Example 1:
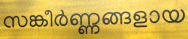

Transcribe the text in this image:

സങ്കീർണ്ണങ്ങളായ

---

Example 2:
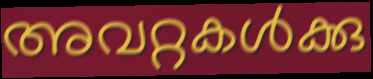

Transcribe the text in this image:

അവറ്റകൾക്കു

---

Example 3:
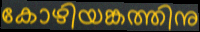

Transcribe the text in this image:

കോഴിയങ്കത്തിനു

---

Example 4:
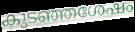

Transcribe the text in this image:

കുടഞ്ഞശേഷം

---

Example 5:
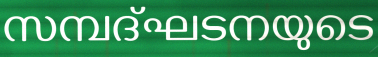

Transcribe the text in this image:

സമ്പദ്ഘടനയുടെ